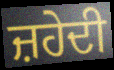
ਜ਼ਹੇਦੀ